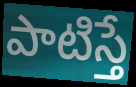
పాటిస్తే